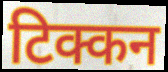
टिक्कन